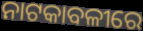
ନାଟକାବଳୀରେ